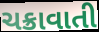
ચક્રાવાતી